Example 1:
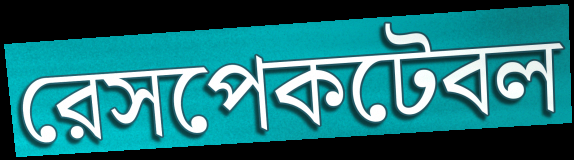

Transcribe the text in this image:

রেসপেকটেবল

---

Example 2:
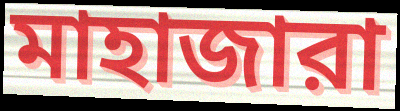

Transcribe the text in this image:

মাহাজারা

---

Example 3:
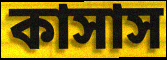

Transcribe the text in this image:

কাসাস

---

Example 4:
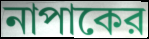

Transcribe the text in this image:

নাপাকের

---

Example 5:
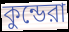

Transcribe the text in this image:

কুন্ডেরা